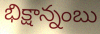
భిక్షాన్నంబు